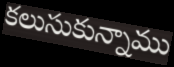
కలుసుకున్నాము